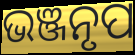
ଭଞ୍ଜନୃପ